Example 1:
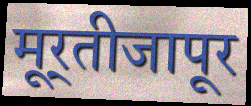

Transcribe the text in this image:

मूर्तीजापूर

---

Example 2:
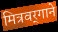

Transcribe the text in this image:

मित्रवर्गाने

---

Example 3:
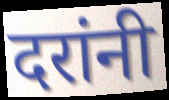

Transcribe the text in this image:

दरांनी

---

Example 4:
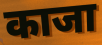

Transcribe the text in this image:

काजा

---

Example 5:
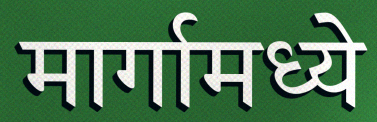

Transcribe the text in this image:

मार्गामध्ये